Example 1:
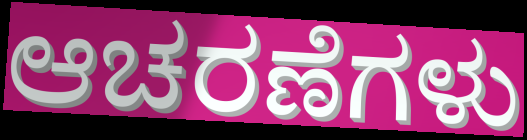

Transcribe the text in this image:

ಆಚರಣೆಗಳು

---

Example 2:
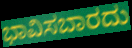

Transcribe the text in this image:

ಭಾವಿಸಬಾರದು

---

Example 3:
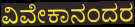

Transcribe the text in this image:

ವಿವೇಕಾನಂದರ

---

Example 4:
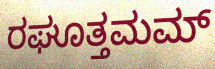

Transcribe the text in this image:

ರಘೂತ್ತಮಮ್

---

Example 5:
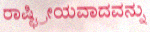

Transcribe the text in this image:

ರಾಷ್ಟ್ರೀಯವಾದವನ್ನು